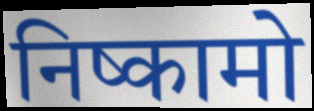
निष्कामो